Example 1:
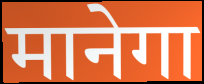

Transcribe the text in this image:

मानेगा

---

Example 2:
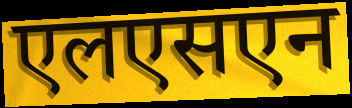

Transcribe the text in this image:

एलएसएन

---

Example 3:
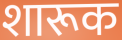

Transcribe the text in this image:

शारूक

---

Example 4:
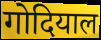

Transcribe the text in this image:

गोदियाल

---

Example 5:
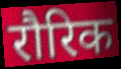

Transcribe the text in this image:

रौरिक